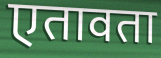
एतावता